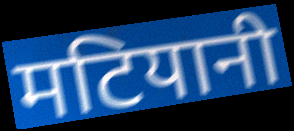
मटियानी